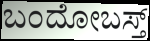
ಬಂದೋಬಸ್ತ್